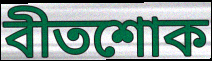
বীতশোক